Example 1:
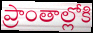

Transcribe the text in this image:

ప్రాంతాల్లోకి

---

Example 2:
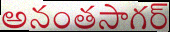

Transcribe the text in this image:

అనంతసాగర్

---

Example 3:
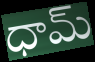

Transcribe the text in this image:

ధామ్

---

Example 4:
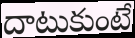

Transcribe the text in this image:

దాటుకుంటే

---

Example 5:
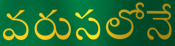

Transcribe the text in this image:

వరుసలోనే